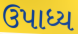
ઉપાધ્ય